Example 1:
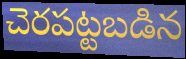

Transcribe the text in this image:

చెరపట్టబడిన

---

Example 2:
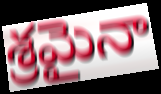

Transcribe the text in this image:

శ్రమైనా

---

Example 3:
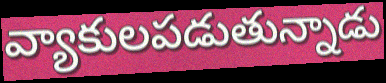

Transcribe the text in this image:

వ్యాకులపడుతున్నాడు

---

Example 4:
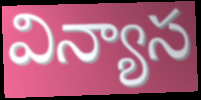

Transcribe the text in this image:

విన్యాస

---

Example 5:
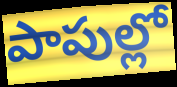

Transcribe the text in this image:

పాపుల్లో